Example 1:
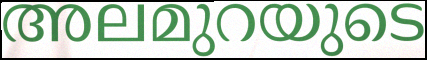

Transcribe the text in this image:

അലമുറയുടെ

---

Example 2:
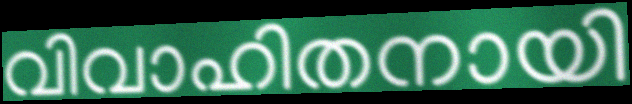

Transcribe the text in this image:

വിവാഹിതനായി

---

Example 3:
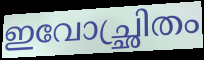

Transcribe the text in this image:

ഇവോച്ഛ്രിതം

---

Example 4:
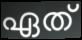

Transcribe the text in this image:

ഏത്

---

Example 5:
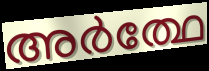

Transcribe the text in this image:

അർത്ഥേ